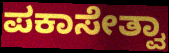
ಪಕಾಸೇತ್ವಾ